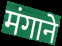
मंगाने